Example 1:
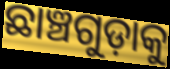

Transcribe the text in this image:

ଛାଞ୍ଚଗୁଡ଼ାକୁ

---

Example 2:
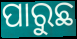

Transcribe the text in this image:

ପାରୁଛ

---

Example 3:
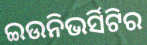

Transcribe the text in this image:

ଇଉନିଭର୍ସିଟିର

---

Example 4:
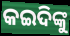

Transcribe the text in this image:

କଇଦିଙ୍କୁ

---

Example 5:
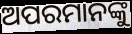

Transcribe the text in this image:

ଅପରମାନଙ୍କୁ